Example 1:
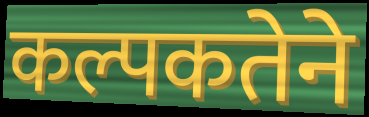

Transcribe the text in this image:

कल्पकतेने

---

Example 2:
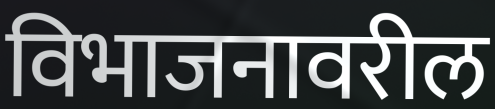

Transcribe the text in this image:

विभाजनावरील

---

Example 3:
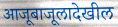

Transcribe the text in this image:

आजूबाजूलादेखील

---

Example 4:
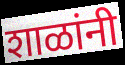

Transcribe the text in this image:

शाळांनी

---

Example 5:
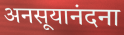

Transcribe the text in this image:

अनसूयानंदना